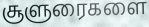
சூளுரைகளை